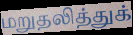
மறுதலித்துக்